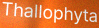
Thallophyta